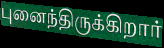
புனைந்திருக்கிறார்